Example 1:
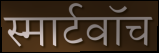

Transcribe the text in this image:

स्मार्टवॉच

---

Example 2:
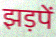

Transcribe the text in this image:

झड़पें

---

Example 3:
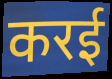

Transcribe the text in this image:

करई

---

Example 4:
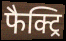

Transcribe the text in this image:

फैक्ट्रि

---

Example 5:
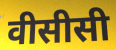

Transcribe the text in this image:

वीसीसी